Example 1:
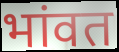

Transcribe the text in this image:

भांवत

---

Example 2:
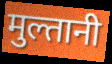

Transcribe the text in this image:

मुल्‍तानी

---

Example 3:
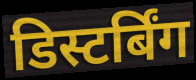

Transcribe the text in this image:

डिस्टर्बिंग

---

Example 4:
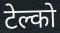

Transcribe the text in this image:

टेल्को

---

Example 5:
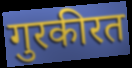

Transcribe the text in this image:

गुरकीरत